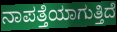
ನಾಪತ್ತೆಯಾಗುತ್ತಿದೆ